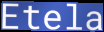
Etela